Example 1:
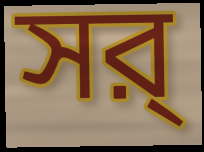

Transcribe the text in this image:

সর্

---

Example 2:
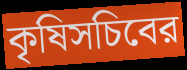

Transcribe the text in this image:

কৃষিসচিবের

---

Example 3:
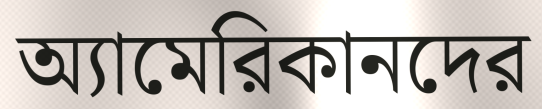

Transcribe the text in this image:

অ্যামেরিকানদের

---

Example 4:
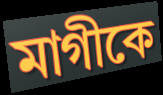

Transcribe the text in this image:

মাগীকে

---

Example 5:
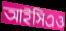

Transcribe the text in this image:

আইসিএও